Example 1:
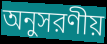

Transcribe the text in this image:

অনুসরণীয়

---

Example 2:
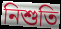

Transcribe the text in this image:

নিশুতি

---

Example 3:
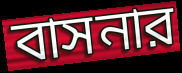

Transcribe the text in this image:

বাসনার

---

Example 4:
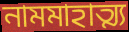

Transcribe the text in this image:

নামমাহাত্ম্য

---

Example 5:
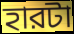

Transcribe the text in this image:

হারটা